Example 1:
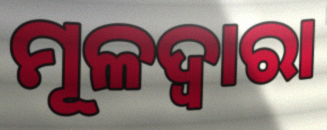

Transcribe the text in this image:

ମୂଳଦ୍ଵାରା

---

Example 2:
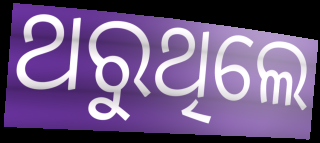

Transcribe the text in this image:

ଥରୁଥିଲେ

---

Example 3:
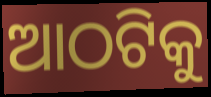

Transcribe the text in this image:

ଆଠଟିକୁ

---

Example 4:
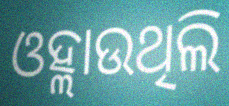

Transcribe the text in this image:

ଓହ୍ଲାଉଥିଲି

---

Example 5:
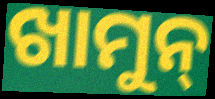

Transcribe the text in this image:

ଖାମୁନ୍